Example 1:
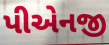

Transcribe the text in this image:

પીએનજી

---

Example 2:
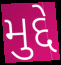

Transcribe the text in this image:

મુદ્દે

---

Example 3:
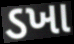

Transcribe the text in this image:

ડખા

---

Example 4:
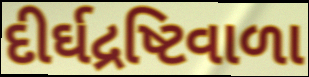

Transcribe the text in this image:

દીર્ઘદ્રષ્ટિવાળા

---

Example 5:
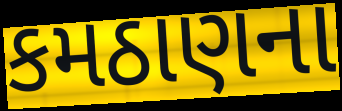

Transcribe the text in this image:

કમઠાણના